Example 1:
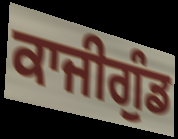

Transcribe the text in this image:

ਕਾਜੀਗੁੰਡ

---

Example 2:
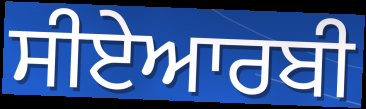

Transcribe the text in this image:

ਸੀਏਆਰਬੀ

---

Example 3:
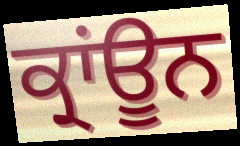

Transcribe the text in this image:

ਕ੍ਰਾਂਊਨ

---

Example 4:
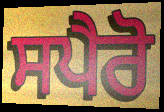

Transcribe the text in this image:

ਸਪੈਰੋ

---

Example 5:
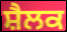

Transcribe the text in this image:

ਸ਼ੈਲਕ